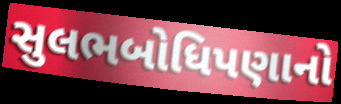
સુલભબોધિપણાનો